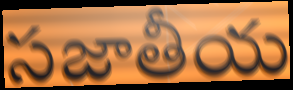
సజాతీయ